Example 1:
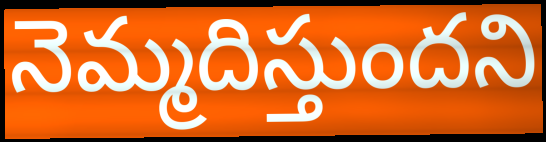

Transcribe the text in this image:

నెమ్మదిస్తుందని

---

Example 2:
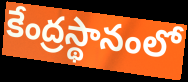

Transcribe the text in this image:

కేంద్రస్థానంలో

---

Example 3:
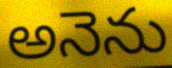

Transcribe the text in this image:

అనెను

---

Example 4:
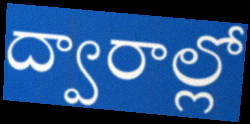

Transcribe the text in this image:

ద్వారాల్లో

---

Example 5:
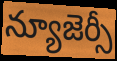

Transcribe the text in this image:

న్యూజెర్సీ